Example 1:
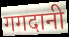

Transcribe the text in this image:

गगदानी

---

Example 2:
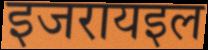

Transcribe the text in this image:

इजरायइल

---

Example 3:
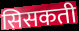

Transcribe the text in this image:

सिसकती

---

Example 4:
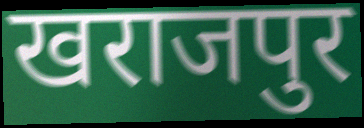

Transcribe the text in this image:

खराजपुर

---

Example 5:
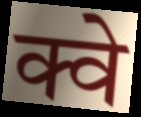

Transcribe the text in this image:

क्वे